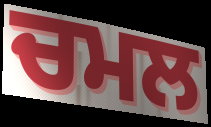
ਚਮਲ